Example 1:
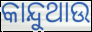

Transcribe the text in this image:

କାନ୍ଦୁଥାଉ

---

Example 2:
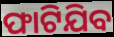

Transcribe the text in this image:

ଫାଟିଯିବ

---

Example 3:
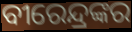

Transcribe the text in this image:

ବୀରେନ୍ଦ୍ରଙ୍କର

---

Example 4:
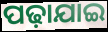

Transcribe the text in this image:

ପଢ଼ାଯାଇ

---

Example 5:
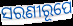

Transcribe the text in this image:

ସରଣୀରୂପେ